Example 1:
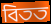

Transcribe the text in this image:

বিতত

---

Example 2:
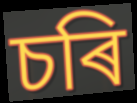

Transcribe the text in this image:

চৰি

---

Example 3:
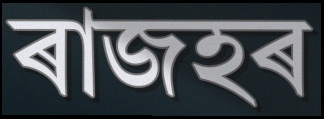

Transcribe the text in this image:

ৰাজহৰ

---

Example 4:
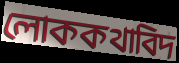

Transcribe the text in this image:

লোককথাবিদ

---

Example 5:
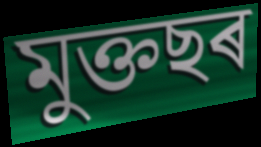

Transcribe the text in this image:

মুক্তছৰ